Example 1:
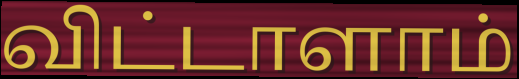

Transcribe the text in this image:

விட்டாளாம்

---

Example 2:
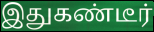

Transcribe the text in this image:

இதுகண்டீர்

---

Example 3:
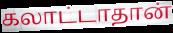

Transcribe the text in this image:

கலாட்டாதான்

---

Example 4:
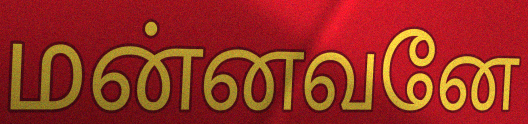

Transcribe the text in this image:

மன்னவனே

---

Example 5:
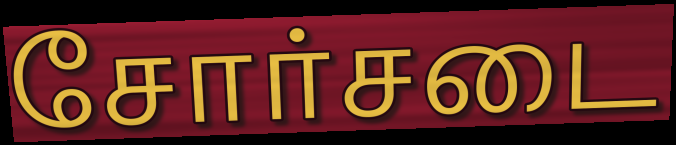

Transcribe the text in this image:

சோர்சடை